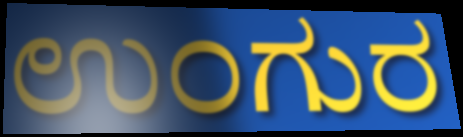
ಉಂಗುರ